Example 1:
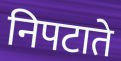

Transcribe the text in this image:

निपटाते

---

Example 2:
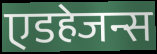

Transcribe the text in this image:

एडहेजन्स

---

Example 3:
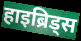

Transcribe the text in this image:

हाइब्रिड्स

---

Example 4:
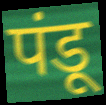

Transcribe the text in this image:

पंडू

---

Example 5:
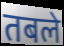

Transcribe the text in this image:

तबले